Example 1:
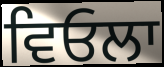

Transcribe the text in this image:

ਵਿਓਲਾ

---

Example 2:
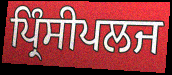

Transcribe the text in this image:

ਪ੍ਰਿੰਸੀਪਲਜ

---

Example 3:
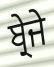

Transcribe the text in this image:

ਬ੍ਰੇਜੇ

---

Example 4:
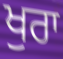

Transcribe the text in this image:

ਖੁਰਾ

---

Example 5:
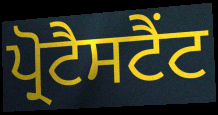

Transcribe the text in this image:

ਪ੍ਰੋਟੈਸਟੈਂਟ